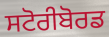
ਸਟੋਰੀਬੋਰਡ